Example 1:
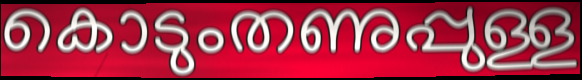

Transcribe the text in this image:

കൊടുംതണുപ്പുള്ള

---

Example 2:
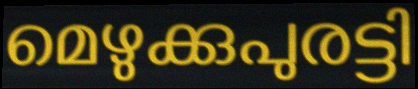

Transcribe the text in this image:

മെഴുക്കുപുരട്ടി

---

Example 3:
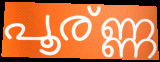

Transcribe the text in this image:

പൂര്ണ്ണ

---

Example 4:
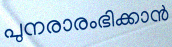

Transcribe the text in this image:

പുനരാരംഭിക്കാൻ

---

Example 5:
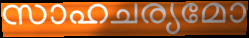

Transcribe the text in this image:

സാഹചര്യമോ